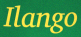
Ilango